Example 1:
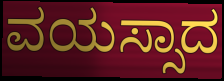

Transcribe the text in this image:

ವಯಸ್ಸಾದ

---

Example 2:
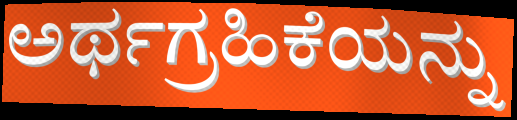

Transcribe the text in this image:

ಅರ್ಥಗ್ರಹಿಕೆಯನ್ನು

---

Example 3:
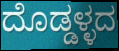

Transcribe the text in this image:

ದೊಡ್ಡಳ್ಳದ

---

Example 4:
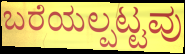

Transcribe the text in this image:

ಬರೆಯಲ್ಪಟ್ಟವು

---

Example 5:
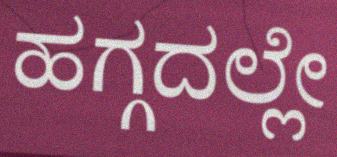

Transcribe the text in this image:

ಹಗ್ಗದಲ್ಲೇ